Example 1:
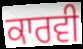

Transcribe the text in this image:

ਕਾਰਵੀ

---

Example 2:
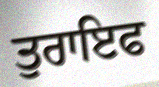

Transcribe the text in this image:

ਤੁਰਾਇਫ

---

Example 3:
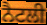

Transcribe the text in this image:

ਨੈਟਲੀ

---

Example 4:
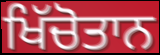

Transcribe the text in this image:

ਖਿੱਚੋਤਾਨ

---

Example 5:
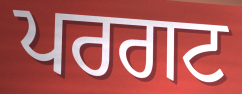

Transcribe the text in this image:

ਪਰਗਟ